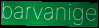
barvanige